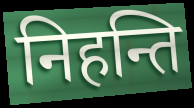
निहन्ति